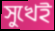
সুখেই